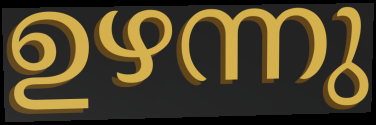
ഉഴന്നു